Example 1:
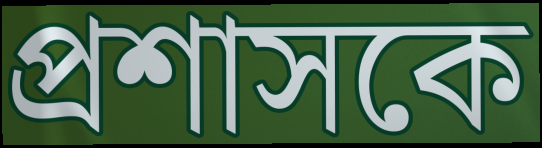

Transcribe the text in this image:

প্ৰশাসকে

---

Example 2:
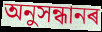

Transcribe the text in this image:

অনুসন্ধানৰ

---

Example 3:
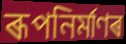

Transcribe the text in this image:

ৰূপনিৰ্মাণৰ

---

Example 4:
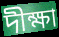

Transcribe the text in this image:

দীক্ষা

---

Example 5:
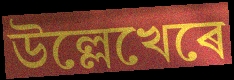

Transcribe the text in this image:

উল্লেখেৰে